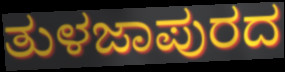
ತುಳಜಾಪುರದ